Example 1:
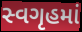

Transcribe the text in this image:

સ્વગૃહમાં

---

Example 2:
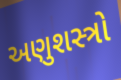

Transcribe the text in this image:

અણુશસ્ત્રો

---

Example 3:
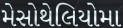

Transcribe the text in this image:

મેસોથેલિયોમા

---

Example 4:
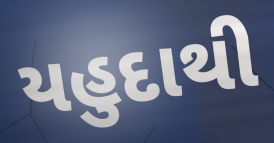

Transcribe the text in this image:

યહુદાથી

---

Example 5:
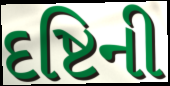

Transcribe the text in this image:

દષ્ટિની